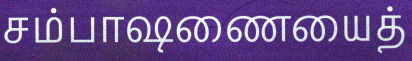
சம்பாஷணையைத்